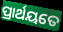
ପ୍ରାର୍ଥୟତେ